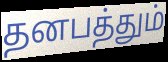
தனபத்தும்